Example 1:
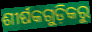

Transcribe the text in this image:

ଶୀର୍ଷକଗୁଡ଼ିକରୁ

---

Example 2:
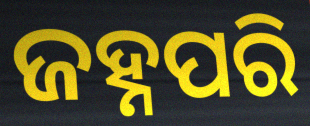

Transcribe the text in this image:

ଜହ୍ନପରି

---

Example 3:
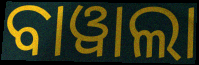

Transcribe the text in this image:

ବାୱାଲା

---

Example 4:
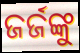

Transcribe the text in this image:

ଜର୍ଜଙ୍କୁ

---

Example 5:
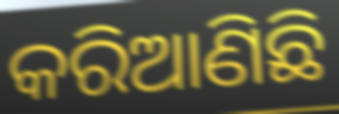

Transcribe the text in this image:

କରିଆଣିଛି